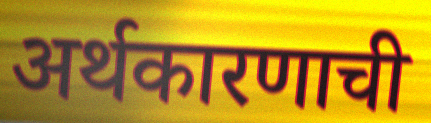
अर्थकारणाची